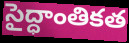
సైద్ధాంతికత